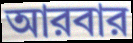
আরবার